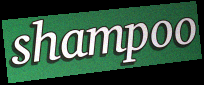
shampoo